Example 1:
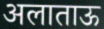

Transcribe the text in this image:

अलाताऊ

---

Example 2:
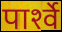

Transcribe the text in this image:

पार्श्वे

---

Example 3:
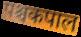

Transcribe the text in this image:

पश्चकपाल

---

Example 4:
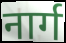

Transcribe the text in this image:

नार्ग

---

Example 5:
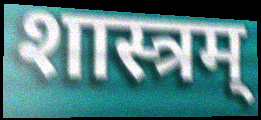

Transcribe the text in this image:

शास्त्रम्